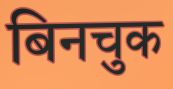
बिनचुक